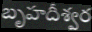
బృహదీశ్వర